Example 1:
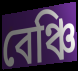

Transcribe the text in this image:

বেঞ্চি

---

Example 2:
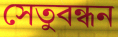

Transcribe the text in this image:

সেতুবন্ধন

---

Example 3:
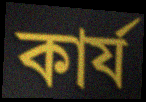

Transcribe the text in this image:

কার্য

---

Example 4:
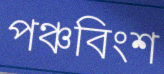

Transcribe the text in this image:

পঞ্চবিংশ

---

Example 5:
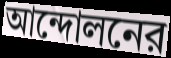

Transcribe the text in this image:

আন্দোলনের